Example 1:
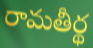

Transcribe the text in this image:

రామతీర్థ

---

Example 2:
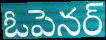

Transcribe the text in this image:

ఓపెనర్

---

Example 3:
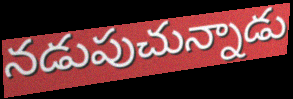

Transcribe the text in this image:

నడుపుచున్నాడు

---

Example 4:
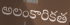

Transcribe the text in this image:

అలంకారికత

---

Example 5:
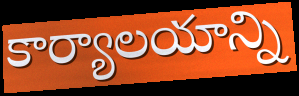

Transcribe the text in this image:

కార్యాలయాన్ని